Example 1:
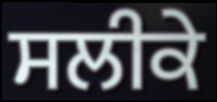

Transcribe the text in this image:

ਸਲੀਕੇ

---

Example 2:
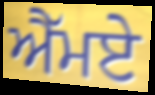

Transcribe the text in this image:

ਐੱਮਏ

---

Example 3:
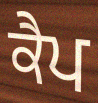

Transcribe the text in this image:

ਕੈਪ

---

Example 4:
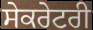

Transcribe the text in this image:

ਸੇਕਰੇਟਰੀ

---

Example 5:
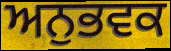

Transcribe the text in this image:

ਅਨੁਭਵਕ